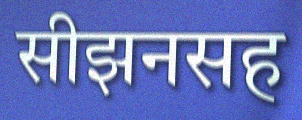
सीझनसह